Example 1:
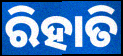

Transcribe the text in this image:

ରିହାତି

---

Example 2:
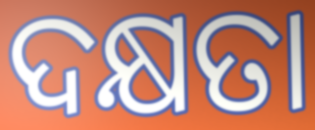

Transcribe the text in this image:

ଦକ୍ଷତା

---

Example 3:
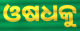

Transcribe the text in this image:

ଓଷଧକୁ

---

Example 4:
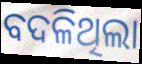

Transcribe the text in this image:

ବଦଳିଥିଲା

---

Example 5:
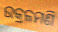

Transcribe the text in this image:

ଉକ୍ରଳମଣି